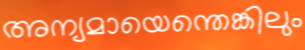
അന്യമായെന്തെങ്കിലും